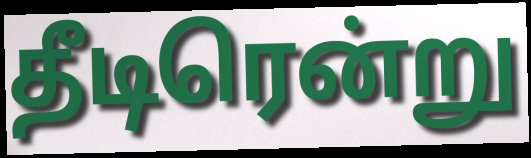
தீடிரென்று